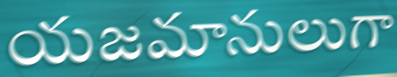
యజమానులుగా